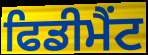
ਫਿਡੀਮੈਂਟ